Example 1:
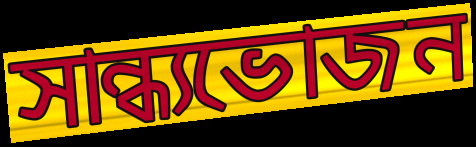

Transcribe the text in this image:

সান্ধ্যভোজন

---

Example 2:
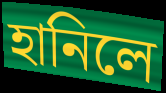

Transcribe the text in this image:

হানিলে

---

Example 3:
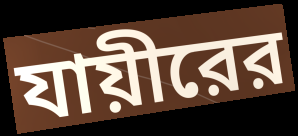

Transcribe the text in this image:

যায়ীরের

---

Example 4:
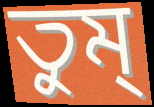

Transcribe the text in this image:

তুম্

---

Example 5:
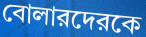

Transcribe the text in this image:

বোলারদেরকে